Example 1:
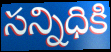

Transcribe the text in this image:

సన్నిధికి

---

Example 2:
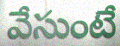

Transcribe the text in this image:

వేసుంటే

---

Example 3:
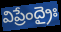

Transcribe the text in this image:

విప్రేంద్రైః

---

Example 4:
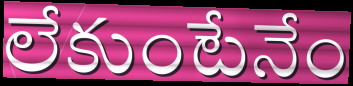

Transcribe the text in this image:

లేకుంటేనేం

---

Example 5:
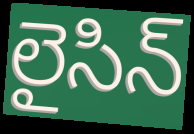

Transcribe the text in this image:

లైసిన్